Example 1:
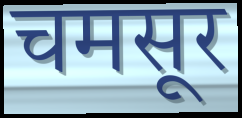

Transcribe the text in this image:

चमसूर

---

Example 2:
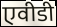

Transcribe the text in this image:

एवीडी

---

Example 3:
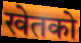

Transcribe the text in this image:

खेतको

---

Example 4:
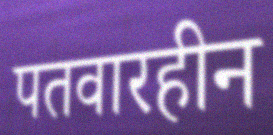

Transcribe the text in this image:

पतवारहीन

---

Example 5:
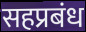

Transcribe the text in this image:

सहप्रबंध